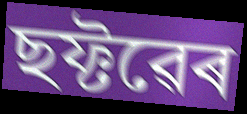
ছফ্টৱেৰ